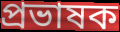
প্রভাষক